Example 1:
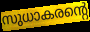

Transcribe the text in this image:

സുധാകരന്റെ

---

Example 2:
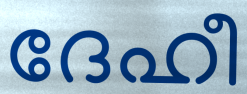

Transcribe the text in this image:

ദേഹീ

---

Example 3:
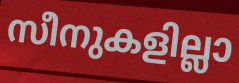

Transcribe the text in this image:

സീനുകളില്ലാ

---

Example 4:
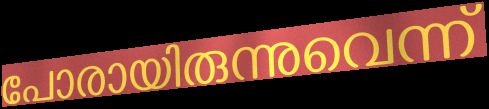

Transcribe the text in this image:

പോരായിരുന്നുവെന്ന്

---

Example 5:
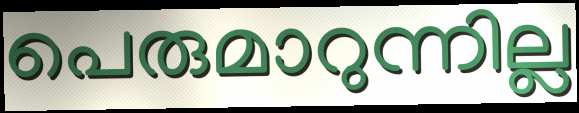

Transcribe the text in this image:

പെരുമാറുന്നില്ല